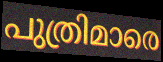
പുത്രിമാരെ